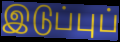
இடுப்புப்